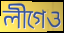
লীগেও